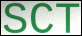
SCT